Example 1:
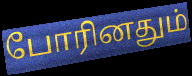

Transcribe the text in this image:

போரினதும்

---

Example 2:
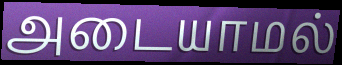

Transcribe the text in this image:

அடையாமல்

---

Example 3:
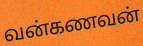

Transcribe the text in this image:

வன்கணவன்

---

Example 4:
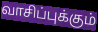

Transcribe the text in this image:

வாசிப்புக்கும்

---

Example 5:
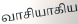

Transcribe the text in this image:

வாசியாகிய